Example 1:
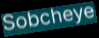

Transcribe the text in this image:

Sobcheye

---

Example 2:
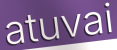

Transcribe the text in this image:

atuvai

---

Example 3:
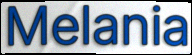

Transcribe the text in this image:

Melania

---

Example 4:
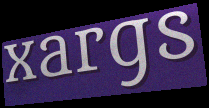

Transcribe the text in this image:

xargs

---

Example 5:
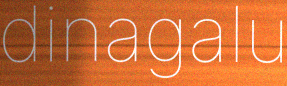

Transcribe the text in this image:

dinagalu